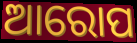
ଆରୋପ